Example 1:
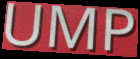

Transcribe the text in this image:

UMP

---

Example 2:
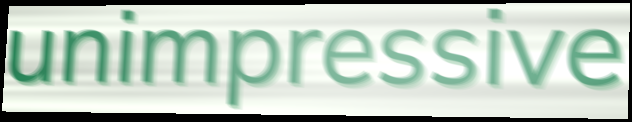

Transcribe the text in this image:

unimpressive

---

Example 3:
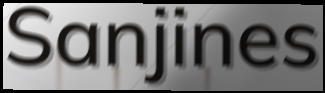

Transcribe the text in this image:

Sanjines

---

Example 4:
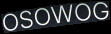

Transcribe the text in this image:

OSOWOG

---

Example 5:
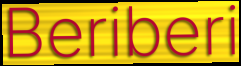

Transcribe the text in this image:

Beriberi